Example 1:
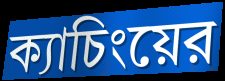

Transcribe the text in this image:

ক্যাচিংয়ের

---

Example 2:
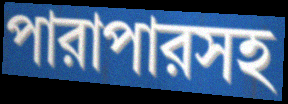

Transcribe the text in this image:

পারাপারসহ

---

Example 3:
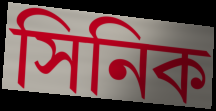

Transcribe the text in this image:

সিনিক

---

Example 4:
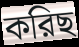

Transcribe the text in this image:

করিছ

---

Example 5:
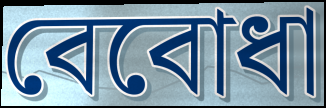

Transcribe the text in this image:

বেবোধা